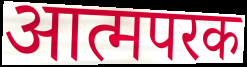
आत्मपरक